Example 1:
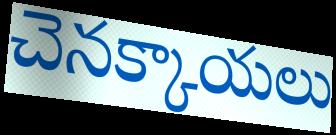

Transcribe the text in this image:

చెనక్కాయలు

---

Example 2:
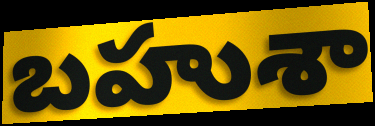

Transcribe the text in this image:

బహుశా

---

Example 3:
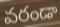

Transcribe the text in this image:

వరండా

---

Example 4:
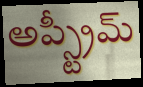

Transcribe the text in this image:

అప్స్ట్రీమ్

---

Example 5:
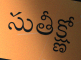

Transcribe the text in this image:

సుతీక్ష్ణో